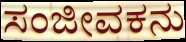
ಸಂಜೀವಕನು